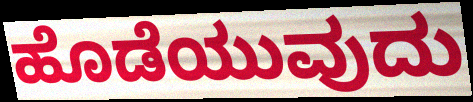
ಹೊಡೆಯುವುದು